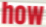
how